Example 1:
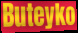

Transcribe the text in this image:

Buteyko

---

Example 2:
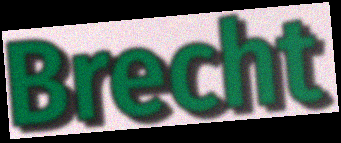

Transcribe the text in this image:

Brecht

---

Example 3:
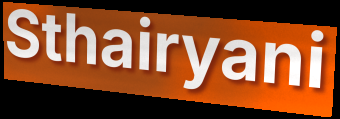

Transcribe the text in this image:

Sthairyani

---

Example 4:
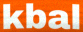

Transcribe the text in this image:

kbal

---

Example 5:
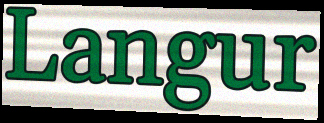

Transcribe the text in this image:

Langur